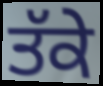
ਤੱਕੇ